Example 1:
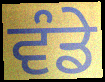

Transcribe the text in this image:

ਵੰਡੇ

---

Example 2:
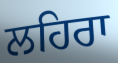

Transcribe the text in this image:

ਲਹਿਰਾ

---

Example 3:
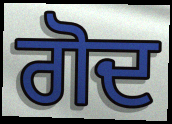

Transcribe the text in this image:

ਗੋਦ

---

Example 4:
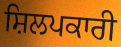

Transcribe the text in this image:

ਸ਼ਿਲਪਕਾਰੀ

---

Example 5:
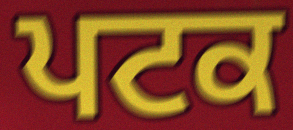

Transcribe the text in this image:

ਪਟਕ